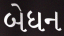
બેધન